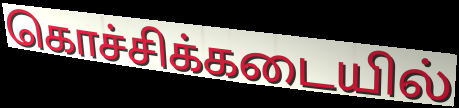
கொச்சிக்கடையில்